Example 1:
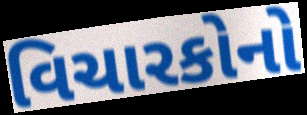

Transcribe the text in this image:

વિચારકોનો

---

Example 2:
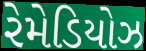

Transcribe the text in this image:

રેમેડિયોઝ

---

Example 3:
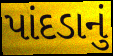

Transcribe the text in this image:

પાંદડાનું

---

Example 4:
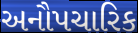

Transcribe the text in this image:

અનૌપચારિક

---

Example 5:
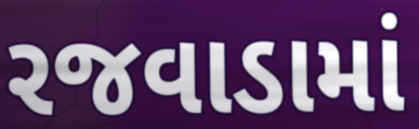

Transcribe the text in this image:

રજવાડામાં